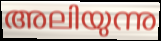
അലിയുന്നു